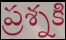
ప్రశ్నకి